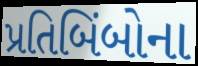
પ્રતિબિંબોના